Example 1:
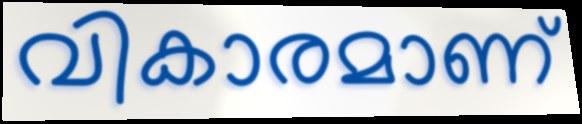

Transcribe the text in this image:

വികാരമാണ്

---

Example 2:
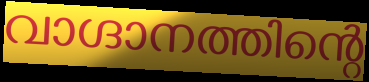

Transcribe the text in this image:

വാഗ്ദാനത്തിന്റെ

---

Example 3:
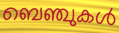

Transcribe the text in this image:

ബെഞ്ചുകൾ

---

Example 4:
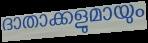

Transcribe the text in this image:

ദാതാക്കളുമായും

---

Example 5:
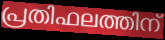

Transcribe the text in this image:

പ്രതിഫലത്തിന്